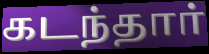
கடந்தார்